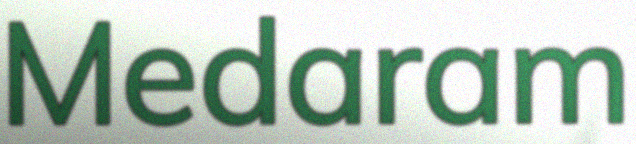
Medaram